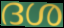
ദശ